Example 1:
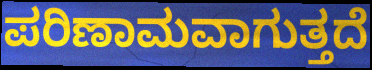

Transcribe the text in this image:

ಪರಿಣಾಮವಾಗುತ್ತದೆ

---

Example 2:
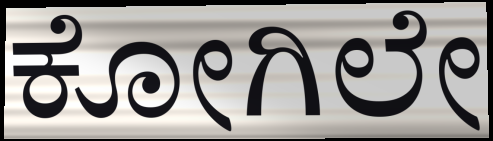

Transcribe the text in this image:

ಕೋಗಿಲೇ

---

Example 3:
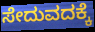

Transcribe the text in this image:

ಸೇದುವದಕ್ಕೆ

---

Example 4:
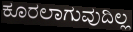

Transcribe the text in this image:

ಕೂರಲಾಗುವುದಿಲ್ಲ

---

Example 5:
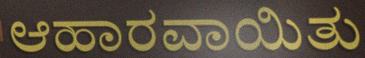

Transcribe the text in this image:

ಆಹಾರವಾಯಿತು